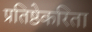
प्रतिष्ठेकरिता